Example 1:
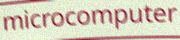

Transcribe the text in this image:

microcomputer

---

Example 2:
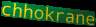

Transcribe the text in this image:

chhokrane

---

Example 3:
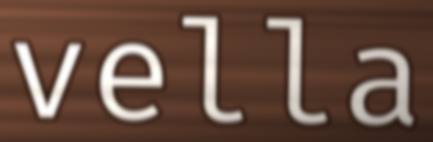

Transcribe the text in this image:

vella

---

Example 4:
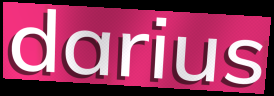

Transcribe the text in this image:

darius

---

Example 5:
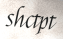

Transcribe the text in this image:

shctpt